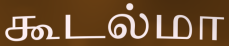
கூடல்மா